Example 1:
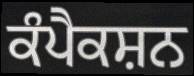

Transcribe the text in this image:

ਕੰਪੈਕਸ਼ਨ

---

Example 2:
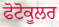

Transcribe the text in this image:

ਫੋਟੋਕੂਲਰ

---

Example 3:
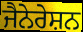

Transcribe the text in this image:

ਜੈਨੇਰੇਸ਼ਨ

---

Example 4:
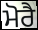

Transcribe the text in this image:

ਮੋਰੈ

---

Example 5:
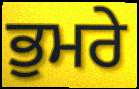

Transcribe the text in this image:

ਭੁਮਰੇ